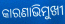
କାରଣାଭିମୁଖୀ